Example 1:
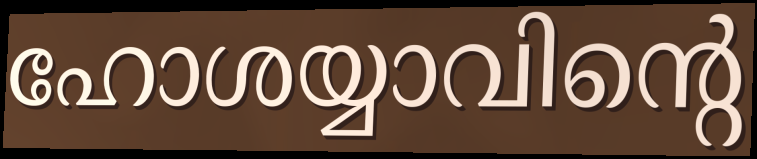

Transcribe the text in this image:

ഹോശയ്യാവിന്റെ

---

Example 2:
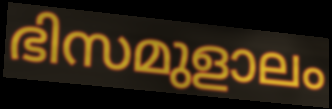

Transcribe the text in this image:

ഭിസമുളാലം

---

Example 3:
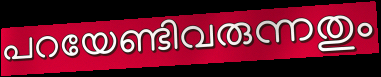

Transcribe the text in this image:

പറയേണ്ടിവരുന്നതും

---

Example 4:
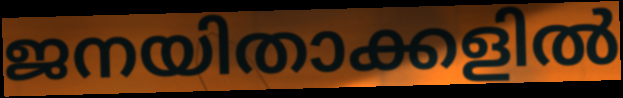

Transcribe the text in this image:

ജനയിതാക്കളിൽ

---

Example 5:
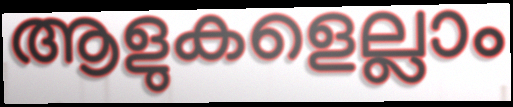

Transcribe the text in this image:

ആളുകളെല്ലാം